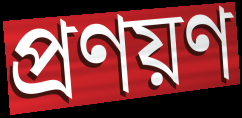
প্রণয়ণ